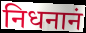
निधनानं